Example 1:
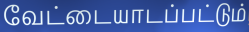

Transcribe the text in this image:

வேட்டையாடப்பட்டும்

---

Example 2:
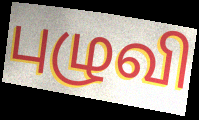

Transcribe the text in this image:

புழுவி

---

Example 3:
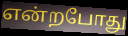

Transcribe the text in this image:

என்றபோது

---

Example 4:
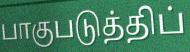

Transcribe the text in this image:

பாகுபடுத்திப்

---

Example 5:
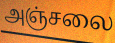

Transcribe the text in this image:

அஞ்சலை